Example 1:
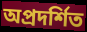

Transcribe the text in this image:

অপ্রদর্শিত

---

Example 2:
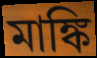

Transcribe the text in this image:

মাঙ্কি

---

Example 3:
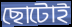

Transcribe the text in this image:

ছোটোই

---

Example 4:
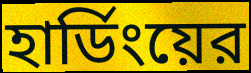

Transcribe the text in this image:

হার্ডিংয়ের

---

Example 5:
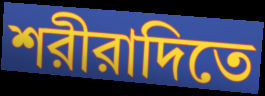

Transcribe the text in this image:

শরীরাদিতে